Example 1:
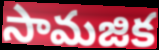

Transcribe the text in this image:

సామజిక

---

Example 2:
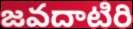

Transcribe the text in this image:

జవదాటిరి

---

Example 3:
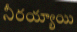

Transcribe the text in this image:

నీరయ్యాయి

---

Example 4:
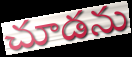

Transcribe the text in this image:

చూడను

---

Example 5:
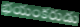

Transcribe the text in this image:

భయంకరుడు